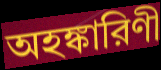
অহঙ্কারিণী